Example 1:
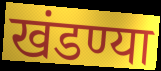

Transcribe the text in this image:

खंडण्या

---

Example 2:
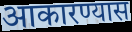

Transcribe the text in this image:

आकारण्यास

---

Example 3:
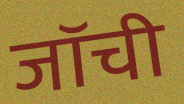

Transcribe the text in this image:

जॉची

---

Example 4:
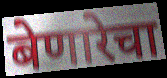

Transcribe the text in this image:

बेणारेचा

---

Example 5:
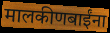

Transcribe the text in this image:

मालकीणबाईंना